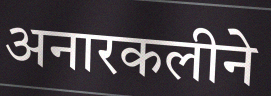
अनारकलीने